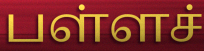
பள்ளச்